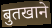
बुतखाने